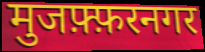
मुजफ़्फ़रनगर